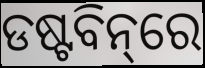
ଡଷ୍ଟବିନ୍‌ରେ